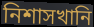
নিশাসখানি